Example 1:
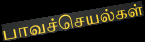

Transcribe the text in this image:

பாவச்செயல்கள்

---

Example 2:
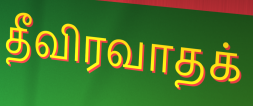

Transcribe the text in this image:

தீவிரவாதக்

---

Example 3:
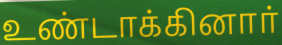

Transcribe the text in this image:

உண்டாக்கினார்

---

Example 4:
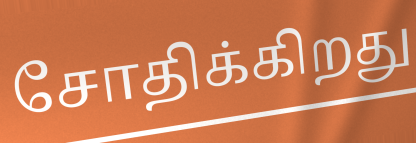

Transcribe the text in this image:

சோதிக்கிறது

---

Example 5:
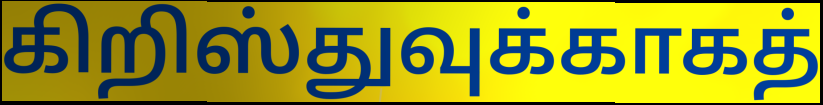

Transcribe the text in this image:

கிறிஸ்துவுக்காகத்